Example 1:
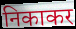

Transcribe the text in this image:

निकाकर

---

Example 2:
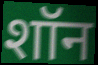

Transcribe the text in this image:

शॉन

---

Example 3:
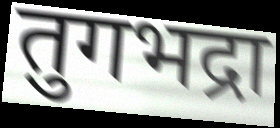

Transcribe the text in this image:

तुगभद्रा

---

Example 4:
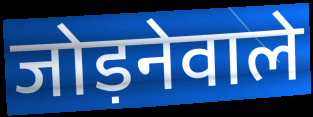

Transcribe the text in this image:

जोड़नेवाले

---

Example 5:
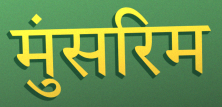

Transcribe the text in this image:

मुंसरिम